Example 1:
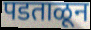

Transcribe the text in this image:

पडताळून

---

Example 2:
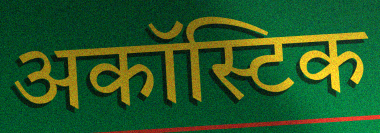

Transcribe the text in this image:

अकॉस्टिक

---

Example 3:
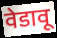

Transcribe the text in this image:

वेडावू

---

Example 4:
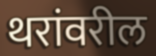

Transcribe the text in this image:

थरांवरील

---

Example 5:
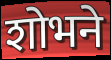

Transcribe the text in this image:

शोभने